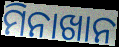
ମିନାଖାନ